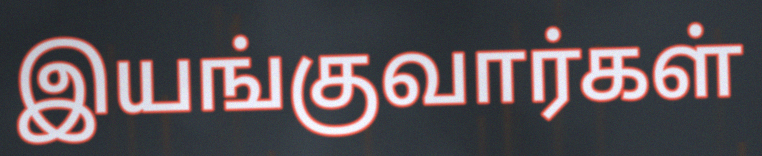
இயங்குவார்கள்